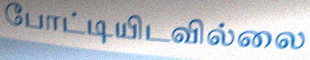
போட்டியிடவில்லை